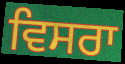
ਵਿਸਰਾ